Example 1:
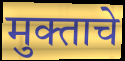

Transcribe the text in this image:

मुक्ताचे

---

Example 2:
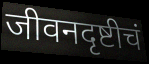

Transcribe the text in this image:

जीवनदृष्टीचं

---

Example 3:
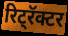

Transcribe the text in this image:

रिट्रॅक्टर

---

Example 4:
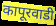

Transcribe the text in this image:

कापूरवाडी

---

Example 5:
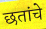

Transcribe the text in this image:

छतांचे